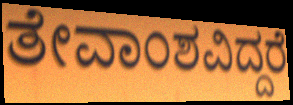
ತೇವಾಂಶವಿದ್ದರೆ